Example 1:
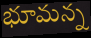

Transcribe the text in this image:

భూమన్న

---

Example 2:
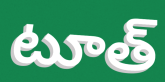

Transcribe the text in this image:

టూత్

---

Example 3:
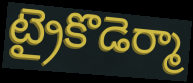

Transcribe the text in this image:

ట్రైకొడెర్మా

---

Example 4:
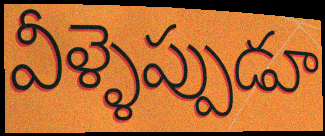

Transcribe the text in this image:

వీళ్ళెప్పుడూ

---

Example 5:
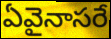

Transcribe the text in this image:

ఏవైనాసరే